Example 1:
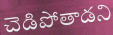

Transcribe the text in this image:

చెడిపోతాడని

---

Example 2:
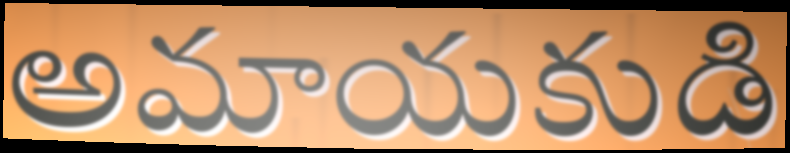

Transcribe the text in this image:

అమాయకుడి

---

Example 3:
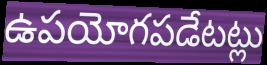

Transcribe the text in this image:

ఉపయోగపడేటట్లు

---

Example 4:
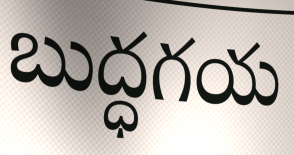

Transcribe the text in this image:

బుద్ధగయ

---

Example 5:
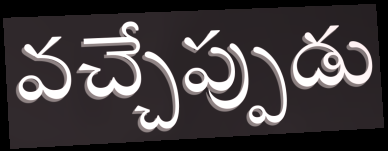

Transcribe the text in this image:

వచ్చేప్పుడు